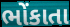
ભોંકાતા